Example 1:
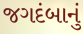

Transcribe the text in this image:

જગદંબાનું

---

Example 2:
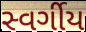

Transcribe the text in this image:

સ્વર્ગીય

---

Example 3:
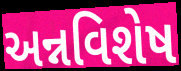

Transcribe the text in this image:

અન્નવિશેષ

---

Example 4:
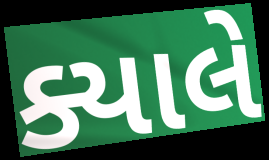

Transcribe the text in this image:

ક્યાલે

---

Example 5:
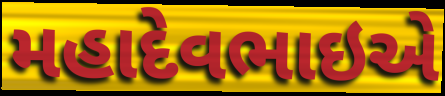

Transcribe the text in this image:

મહાદેવભાઇએ